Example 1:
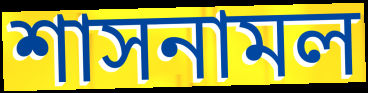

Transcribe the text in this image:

শাসনামল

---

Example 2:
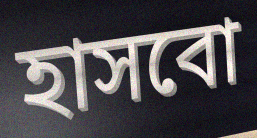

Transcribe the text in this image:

হাসবো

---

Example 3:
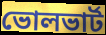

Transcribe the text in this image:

ভোলভার্ট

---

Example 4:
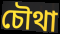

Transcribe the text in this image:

চৌথা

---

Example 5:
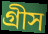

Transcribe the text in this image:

গ্রীস